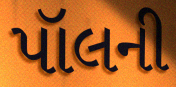
પૉલની